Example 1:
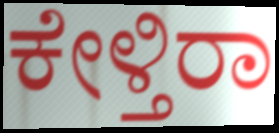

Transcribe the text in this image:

ಕೇಳ್ತಿರಾ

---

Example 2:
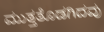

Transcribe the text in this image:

ಮುತ್ತತೊಡಗಿದವು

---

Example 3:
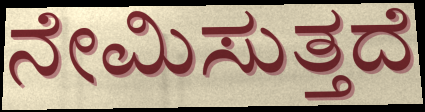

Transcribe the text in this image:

ನೇಮಿಸುತ್ತದೆ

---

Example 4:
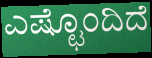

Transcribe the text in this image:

ಎಷ್ಟೊಂದಿದೆ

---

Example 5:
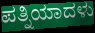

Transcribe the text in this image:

ಪತ್ನಿಯಾದಳು